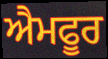
ਐਮਫੂਰ